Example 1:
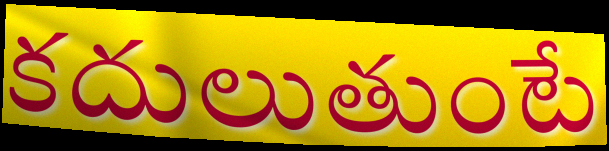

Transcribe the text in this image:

కదులుతుంటే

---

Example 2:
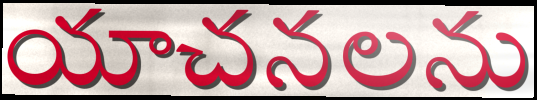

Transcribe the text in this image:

యాచనలను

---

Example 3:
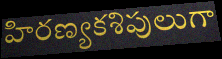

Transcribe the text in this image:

హిరణ్యకశిపులుగా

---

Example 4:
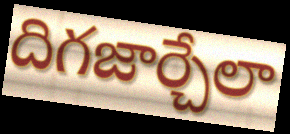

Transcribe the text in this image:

దిగజార్చేలా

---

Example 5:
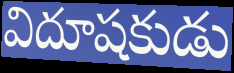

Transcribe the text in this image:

విదూషకుడు